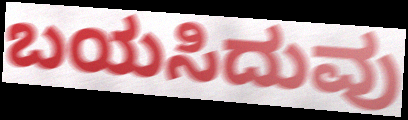
ಬಯಸಿದುವು